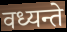
वध्यन्ते